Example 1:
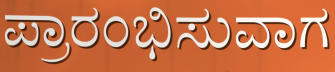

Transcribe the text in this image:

ಪ್ರಾರಂಭಿಸುವಾಗ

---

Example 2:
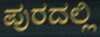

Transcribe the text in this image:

ಪುರದಲ್ಲಿ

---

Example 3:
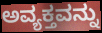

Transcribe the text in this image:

ಅವ್ಯಕ್ತವನ್ನು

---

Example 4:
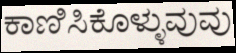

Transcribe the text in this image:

ಕಾಣಿಸಿಕೊಳ್ಳುವುವು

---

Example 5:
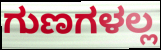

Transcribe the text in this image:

ಗುಣಗಳಲ್ಲ